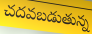
చదవబడుతున్న